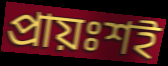
প্রায়ঃশই